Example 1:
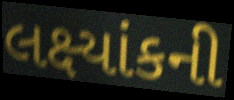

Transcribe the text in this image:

લક્ષ્યાંકની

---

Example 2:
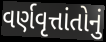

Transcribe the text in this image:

વર્ણવૃત્તાંતોનું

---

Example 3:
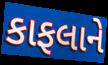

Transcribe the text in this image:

કાફલાને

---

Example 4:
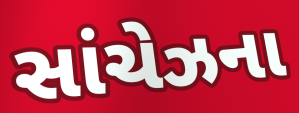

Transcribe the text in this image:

સાંચેઝના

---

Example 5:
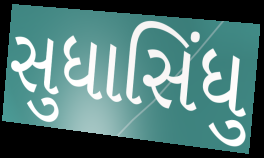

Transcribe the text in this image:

સુધાસિંધુ